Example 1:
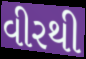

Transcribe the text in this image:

વીરથી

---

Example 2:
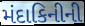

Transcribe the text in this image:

મંદાકિનીની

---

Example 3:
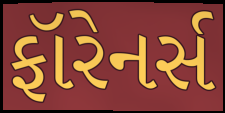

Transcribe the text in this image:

ફૉરેનર્સ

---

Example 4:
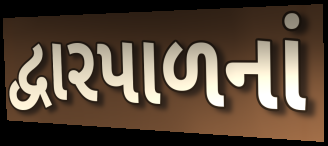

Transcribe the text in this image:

દ્વારપાળનાં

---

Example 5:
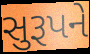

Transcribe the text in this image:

સુરૂપને